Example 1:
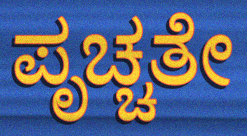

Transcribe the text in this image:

ಪೃಚ್ಚತೇ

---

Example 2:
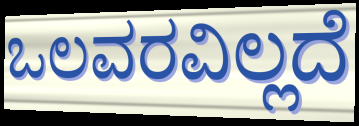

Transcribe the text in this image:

ಒಲವರವಿಲ್ಲದೆ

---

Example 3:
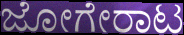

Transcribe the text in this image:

ಜೋಗೇರಾಟ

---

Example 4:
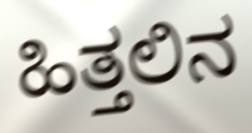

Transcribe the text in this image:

ಹಿತ್ತಲಿನ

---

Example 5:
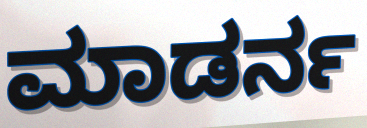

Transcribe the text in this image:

ಮಾಡರ್ನ